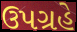
ઉપગ્રહે